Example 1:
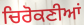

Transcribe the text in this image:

ਚਿਰੋਕਣੀਆਂ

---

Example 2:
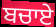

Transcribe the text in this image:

ਬਚਾਏ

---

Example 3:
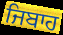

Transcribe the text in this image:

ਜਿਬਾਹ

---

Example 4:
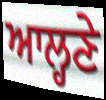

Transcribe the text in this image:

ਆਲ੍ਹਣੇ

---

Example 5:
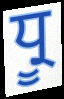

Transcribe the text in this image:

ਧ੍ਰੂ